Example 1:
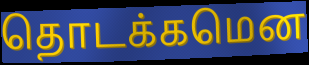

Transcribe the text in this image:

தொடக்கமென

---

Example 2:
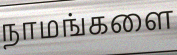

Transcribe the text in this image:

நாமங்களை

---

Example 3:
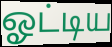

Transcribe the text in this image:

ஓட்டிய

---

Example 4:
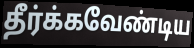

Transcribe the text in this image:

தீர்க்கவேண்டிய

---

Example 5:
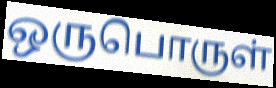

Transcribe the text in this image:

ஒருபொருள்